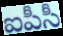
ఐపీసీ